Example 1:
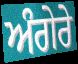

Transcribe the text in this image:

ਅੰਗੇਰੇ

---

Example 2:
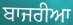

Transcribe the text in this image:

ਬਾਜਰੀਆ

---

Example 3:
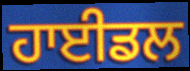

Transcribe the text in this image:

ਹਾਈਡਲ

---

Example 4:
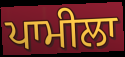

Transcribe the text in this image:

ਪਾਮੀਲਾ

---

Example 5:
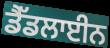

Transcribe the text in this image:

ਡੈੱਡਲਾਈਨ